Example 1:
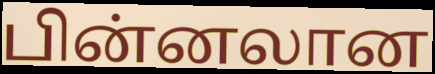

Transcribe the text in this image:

பின்னலான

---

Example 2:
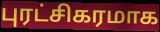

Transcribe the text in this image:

புரட்சிகரமாக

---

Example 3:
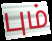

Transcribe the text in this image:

பும்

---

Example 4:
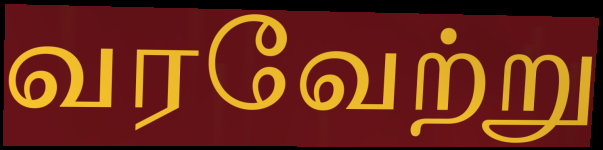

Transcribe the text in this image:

வரவேற்று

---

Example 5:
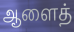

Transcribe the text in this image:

ஆளைத்